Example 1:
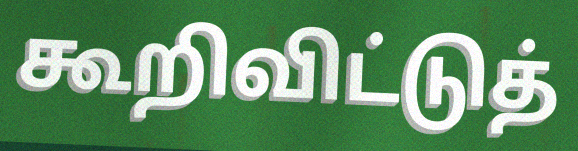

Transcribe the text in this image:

கூறிவிட்டுத்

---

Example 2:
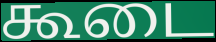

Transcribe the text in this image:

கூடை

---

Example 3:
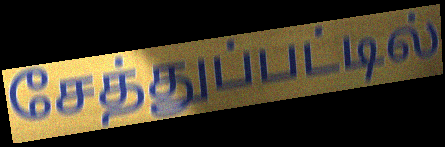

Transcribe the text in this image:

சேத்துப்பட்டில்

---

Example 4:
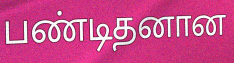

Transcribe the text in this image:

பண்டிதனான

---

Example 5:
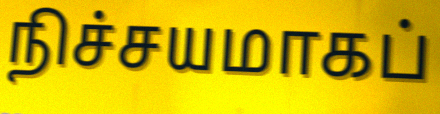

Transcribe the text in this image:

நிச்சயமாகப்